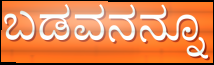
ಬಡವನನ್ನೂ